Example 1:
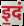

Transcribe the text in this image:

इ॒दं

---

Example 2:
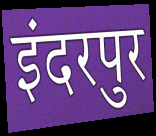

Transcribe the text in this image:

इंदरपुर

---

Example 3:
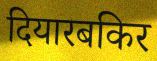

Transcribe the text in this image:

दियारबकिर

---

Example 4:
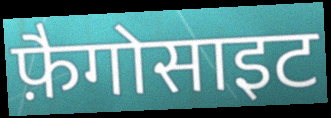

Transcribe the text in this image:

फ़ैगोसाइट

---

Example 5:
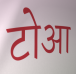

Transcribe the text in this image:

टोआ